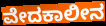
ವೇದಕಾಲೀನ